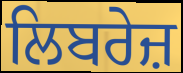
ਲਿਬਰੇਜ਼